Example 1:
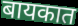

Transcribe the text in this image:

बायकात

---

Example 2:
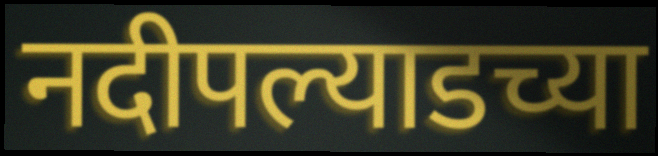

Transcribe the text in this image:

नदीपल्याडच्या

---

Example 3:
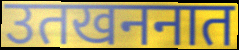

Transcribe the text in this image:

उतखननात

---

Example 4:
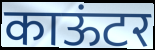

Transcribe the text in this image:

काऊंटर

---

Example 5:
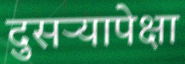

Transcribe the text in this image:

दुसऱ्यापेक्षा